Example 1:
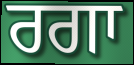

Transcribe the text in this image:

ਰਗਾ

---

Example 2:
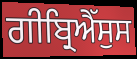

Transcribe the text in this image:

ਗੀਬ੍ਰਿਐੱਸੁਸ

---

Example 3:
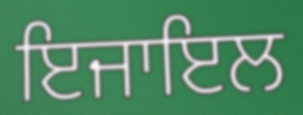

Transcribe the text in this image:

ਇਜਾਇਲ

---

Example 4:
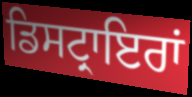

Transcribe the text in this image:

ਡਿਸਟ੍ਰਾਇਰਾਂ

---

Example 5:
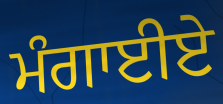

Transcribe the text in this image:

ਮੰਗਾਈਏ